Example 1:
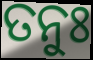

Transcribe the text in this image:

ତନୁଃ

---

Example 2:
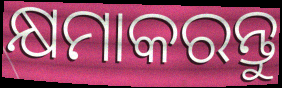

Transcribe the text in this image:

କ୍ଷମାକରନ୍ତୁ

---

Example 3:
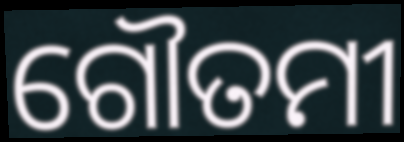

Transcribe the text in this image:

ଗୌତମୀ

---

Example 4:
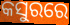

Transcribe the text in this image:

କସୁରରେ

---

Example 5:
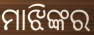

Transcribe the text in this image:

ମାଝିଙ୍କର